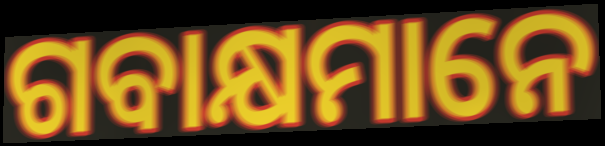
ଗବାକ୍ଷମାନେ